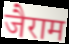
जैराम